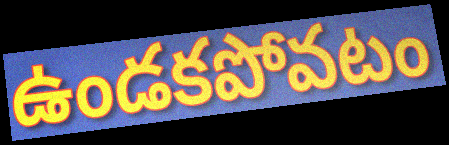
ఉండకపోవటం